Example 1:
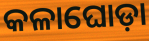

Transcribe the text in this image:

କଳାଘୋଡ଼ା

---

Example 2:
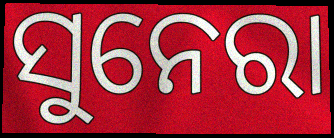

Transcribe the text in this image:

ସୁନେରା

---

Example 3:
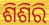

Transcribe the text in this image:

ଶିଶିରି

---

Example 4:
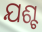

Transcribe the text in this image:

ଯଶ୍ଚ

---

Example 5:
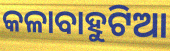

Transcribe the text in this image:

କଳାବାହୁଟିଆ